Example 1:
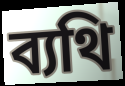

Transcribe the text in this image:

ব্যথি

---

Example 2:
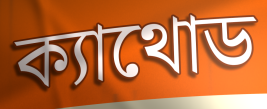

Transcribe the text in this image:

ক্যাথোড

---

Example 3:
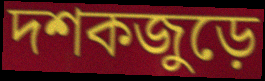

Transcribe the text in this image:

দশকজুড়ে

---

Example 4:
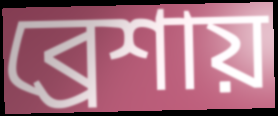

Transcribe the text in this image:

ব্রেশায়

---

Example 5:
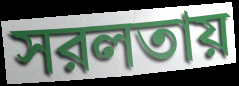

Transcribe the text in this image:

সরলতায়